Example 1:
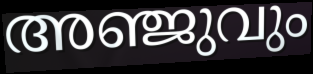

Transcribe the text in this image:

അഞ്ജുവും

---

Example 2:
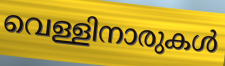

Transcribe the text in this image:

വെള്ളിനാരുകൾ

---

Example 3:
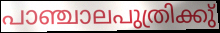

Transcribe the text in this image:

പാഞ്ചാലപുത്രിക്കു്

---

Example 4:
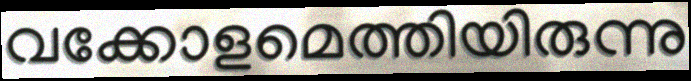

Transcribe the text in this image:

വക്കോളമെത്തിയിരുന്നു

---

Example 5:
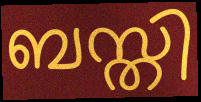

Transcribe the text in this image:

ബസ്തി